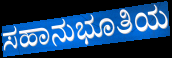
ಸಹಾನುಭೂತಿಯ